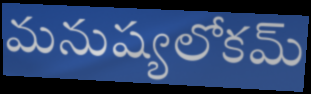
మనుష్యలోకమ్